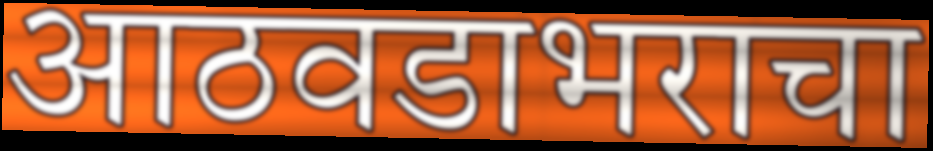
आठवडाभराचा